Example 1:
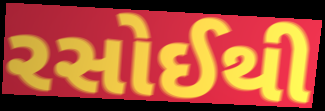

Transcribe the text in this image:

રસોઈથી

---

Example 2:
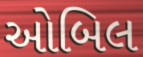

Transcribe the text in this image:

ઓબિલ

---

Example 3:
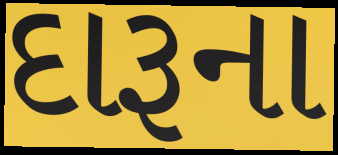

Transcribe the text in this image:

દારૂના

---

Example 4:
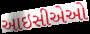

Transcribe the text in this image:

આઇસીએઓ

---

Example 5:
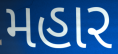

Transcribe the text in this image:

મહાર